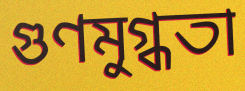
গুণমুগ্ধতা